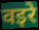
वइरे